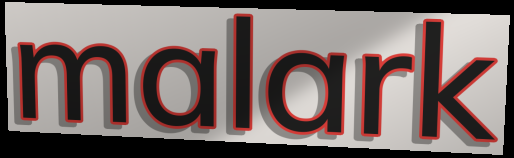
malark